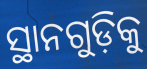
ସ୍ଥାନଗୁଡ଼ିକୁ